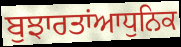
ਬੁਝਾਰਤਾਂਆਧੁਨਿਕ